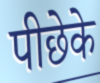
पीछेके